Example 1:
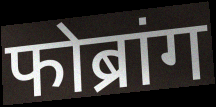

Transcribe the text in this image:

फोब्रांग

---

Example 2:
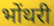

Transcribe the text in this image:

भोंथरी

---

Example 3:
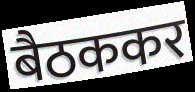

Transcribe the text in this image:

बैठककर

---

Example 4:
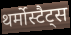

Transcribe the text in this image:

थर्मोस्टैट्स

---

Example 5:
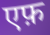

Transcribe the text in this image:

एफ़